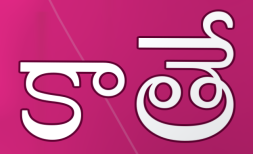
కాతే